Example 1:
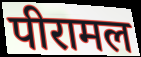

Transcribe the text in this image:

पीरामल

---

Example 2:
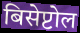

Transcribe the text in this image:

बिसेप्टोल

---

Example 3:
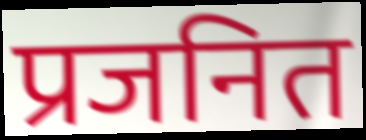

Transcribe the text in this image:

प्रजनित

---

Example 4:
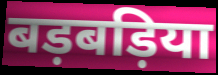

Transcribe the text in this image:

बड़बड़िया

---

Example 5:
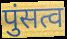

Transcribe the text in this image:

पुंसत्व